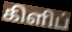
கிளிப்